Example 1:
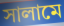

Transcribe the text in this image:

সালামে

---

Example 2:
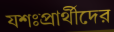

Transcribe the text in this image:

যশঃপ্রার্থীদের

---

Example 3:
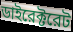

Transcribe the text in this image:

ডাইরেক্টরেট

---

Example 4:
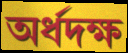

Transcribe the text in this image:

অর্ধদক্ষ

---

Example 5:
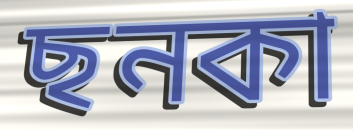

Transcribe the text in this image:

ছনকা